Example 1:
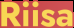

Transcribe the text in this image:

Riisa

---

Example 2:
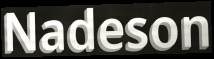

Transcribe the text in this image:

Nadeson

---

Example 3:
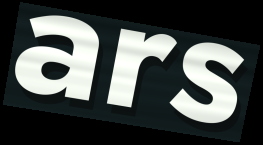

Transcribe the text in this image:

ars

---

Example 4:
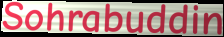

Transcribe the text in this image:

Sohrabuddin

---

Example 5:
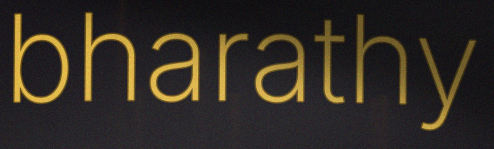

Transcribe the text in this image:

bharathy